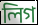
লিগ